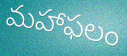
మహాఫలం